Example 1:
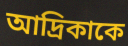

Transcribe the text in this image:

আদ্রিকাকে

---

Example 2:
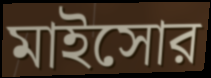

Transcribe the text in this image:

মাইসোর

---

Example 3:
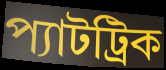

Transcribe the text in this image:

প্যাটট্রিক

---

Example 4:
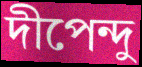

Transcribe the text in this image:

দীপেন্দু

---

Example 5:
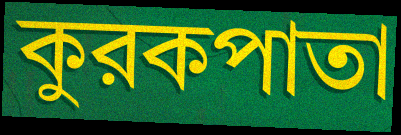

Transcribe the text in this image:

কুরকপাতা